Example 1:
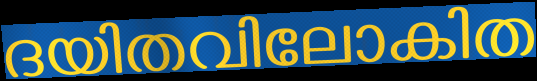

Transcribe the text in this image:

ദയിതവിലോകിത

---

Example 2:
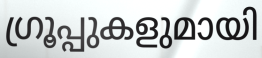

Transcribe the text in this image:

ഗ്രൂപ്പുകളുമായി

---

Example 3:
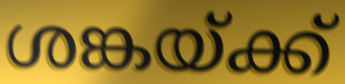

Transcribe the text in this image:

ശങ്കയ്ക്ക്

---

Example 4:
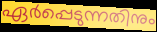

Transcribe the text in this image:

ഏർപ്പെടുന്നതിനും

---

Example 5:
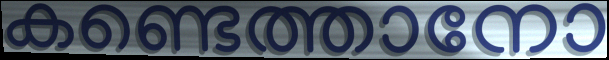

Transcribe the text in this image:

കണ്ടെത്താനോ